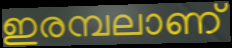
ഇരമ്പലാണ്